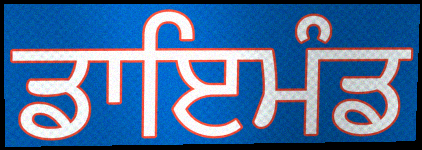
ਡਾਇਮੰਡ